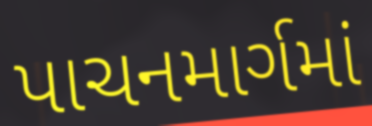
પાચનમાર્ગમાં